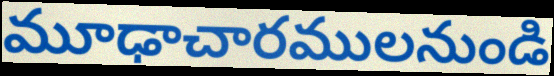
మూఢాచారములనుండి